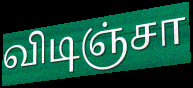
விடிஞ்சா